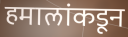
हमालांकडून